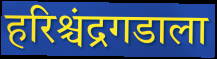
हरिश्चंद्रगडाला